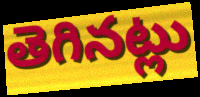
తెగినట్లు